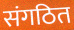
संगठित